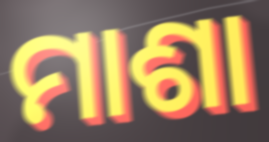
ମାଶା